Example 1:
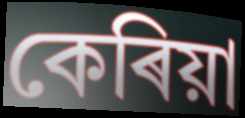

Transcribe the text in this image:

কেৰিয়া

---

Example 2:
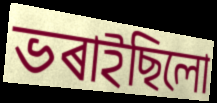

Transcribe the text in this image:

ভৰাইছিলো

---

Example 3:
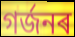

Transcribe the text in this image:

গৰ্জনৰ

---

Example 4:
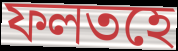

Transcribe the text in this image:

ফলতহে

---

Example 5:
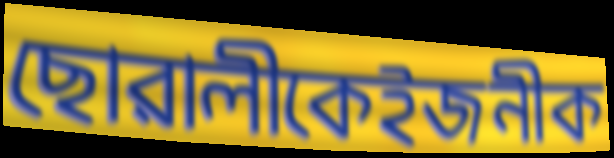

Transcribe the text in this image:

ছোৱালীকেইজনীক